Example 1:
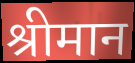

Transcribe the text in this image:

श्रीमान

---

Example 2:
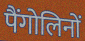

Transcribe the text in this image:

पैंगोलिनों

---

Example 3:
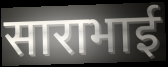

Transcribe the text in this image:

साराभाई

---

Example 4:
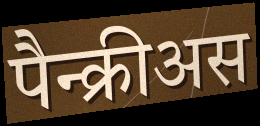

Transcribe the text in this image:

पैन्क्रीअस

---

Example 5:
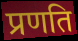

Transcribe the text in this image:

प्रणति